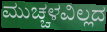
ಮುಚ್ಚಳವಿಲ್ಲದ